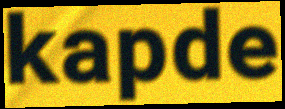
kapde